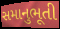
સમાનુભૂતી